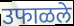
उफाळले